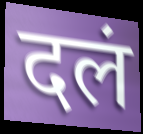
दलं